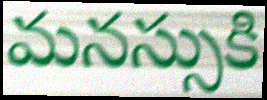
మనస్సుకి